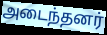
அடைந்தனர்